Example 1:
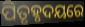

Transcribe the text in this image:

ପିତୃହୃଦୟରେ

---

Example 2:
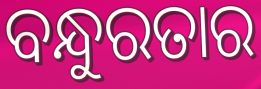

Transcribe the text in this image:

ବନ୍ଧୁରତାର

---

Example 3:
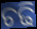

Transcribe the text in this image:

ଚଢି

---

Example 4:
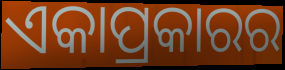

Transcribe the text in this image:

ଏକାପ୍ରକାରର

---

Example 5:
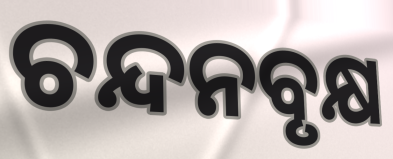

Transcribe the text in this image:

ଚନ୍ଦନବୃକ୍ଷ